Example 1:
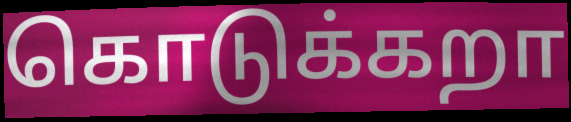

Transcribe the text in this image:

கொடுக்கறா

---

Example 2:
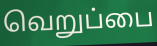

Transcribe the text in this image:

வெறுப்பை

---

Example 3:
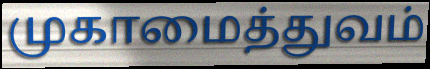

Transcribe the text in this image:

முகாமைத்துவம்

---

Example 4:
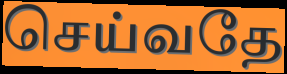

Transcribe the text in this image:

செய்வதே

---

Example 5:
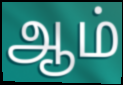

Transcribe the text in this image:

ஆம்